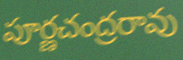
పూర్ణచంద్రరావు